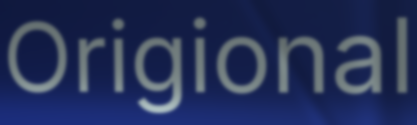
Origional